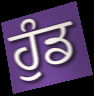
ਹੁੰਡ